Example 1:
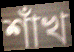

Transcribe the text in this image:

শাঁখ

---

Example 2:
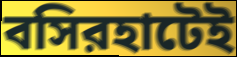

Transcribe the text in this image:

বসিরহাটেই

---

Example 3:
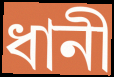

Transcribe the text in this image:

ধানী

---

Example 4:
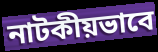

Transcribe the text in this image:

নাটকীয়ভাবে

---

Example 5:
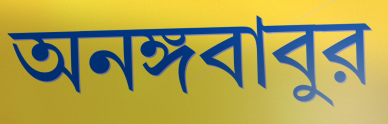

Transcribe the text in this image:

অনঙ্গবাবুর